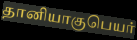
தானியாகுபெயர்